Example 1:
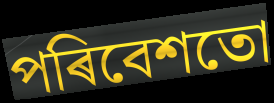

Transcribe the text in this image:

পৰিবেশতো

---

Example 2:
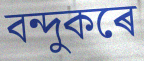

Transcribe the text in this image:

বন্দুকৰে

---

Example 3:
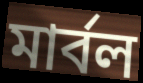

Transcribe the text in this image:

মাৰ্বল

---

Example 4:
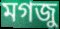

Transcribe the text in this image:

মগজু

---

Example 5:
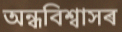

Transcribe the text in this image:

অন্ধবিশ্বাসৰ